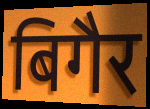
बिगैर